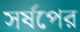
সর্ষপের